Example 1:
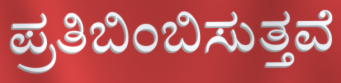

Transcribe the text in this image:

ಪ್ರತಿಬಿಂಬಿಸುತ್ತವೆ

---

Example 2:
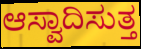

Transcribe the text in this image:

ಆಸ್ವಾದಿಸುತ್ತ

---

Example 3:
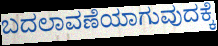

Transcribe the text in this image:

ಬದಲಾವಣೆಯಾಗುವುದಕ್ಕೆ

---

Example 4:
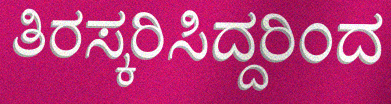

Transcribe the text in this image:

ತಿರಸ್ಕರಿಸಿದ್ದರಿಂದ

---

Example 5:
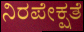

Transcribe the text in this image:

ನಿರಪೇಕ್ಷತೆ